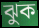
ঝুক